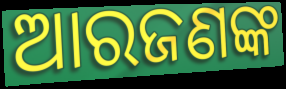
ଆରଜଣଙ୍କ